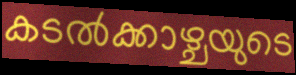
കടൽക്കാഴ്ചയുടെ